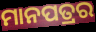
ମାନପତ୍ରର